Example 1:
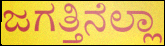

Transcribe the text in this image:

ಜಗತ್ತಿನೆಲ್ಲಾ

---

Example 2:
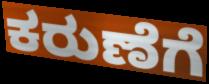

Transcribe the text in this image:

ಕರುಣೆಗೆ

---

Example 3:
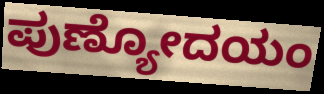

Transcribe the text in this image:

ಪುಣ್ಯೋದಯಂ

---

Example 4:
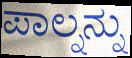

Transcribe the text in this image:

ಪಾಲ್ನನ್ನು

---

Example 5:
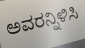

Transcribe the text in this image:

ಅವರನ್ನಿಳಿಸಿ